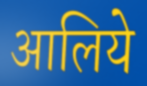
आलिये